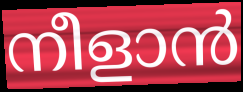
നീളാൻ